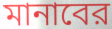
মানাবের